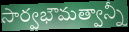
సార్వభౌమత్వాన్నీ